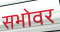
सभोवर